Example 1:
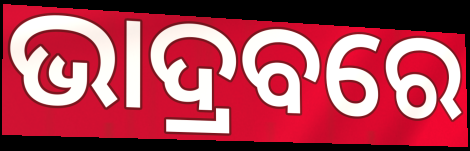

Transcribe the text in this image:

ଭାଦ୍ରବରେ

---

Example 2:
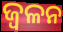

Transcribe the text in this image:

ଜ୍ୱଳନ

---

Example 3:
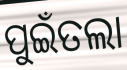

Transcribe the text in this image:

ପୁଇଁତଲା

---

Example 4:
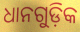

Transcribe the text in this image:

ଧାନଗୁଡ଼ିକ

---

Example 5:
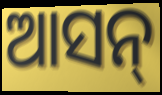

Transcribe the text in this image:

ଆସନ୍